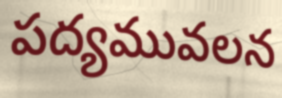
పద్యమువలన